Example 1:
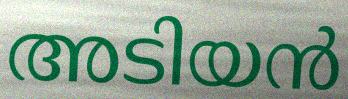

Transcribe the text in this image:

അടിയൻ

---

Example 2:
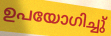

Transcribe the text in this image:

ഉപയോഗിച്ചു്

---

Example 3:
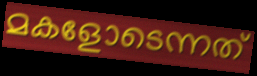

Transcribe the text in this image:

മകളോടെന്നത്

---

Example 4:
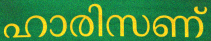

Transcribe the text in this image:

ഹാരിസണ്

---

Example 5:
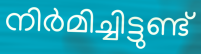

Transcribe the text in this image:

നിർമിച്ചിട്ടുണ്ട്